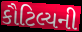
કૌટિલ્યની